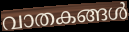
വാതകങ്ങൾ